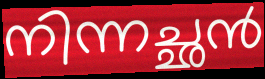
നിന്നച്ഛൻ